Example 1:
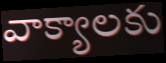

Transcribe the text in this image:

వాక్యాలకు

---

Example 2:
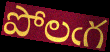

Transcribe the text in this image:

పోలఁగ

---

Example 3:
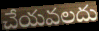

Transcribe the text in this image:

చేయవలదు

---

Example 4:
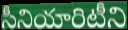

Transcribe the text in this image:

సీనియారిటీని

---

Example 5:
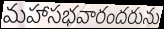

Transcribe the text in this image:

మహాసభవారందరును